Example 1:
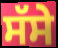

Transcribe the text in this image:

ਸੱਸੇ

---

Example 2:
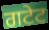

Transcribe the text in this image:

ਗਟੇਟ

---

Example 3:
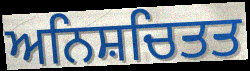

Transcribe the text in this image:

ਅਨਿਸ਼ਚਿਤਤ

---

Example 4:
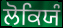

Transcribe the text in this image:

ਲੋਕਿਯੰ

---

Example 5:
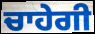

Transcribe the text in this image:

ਚਾਹੇਗੀ